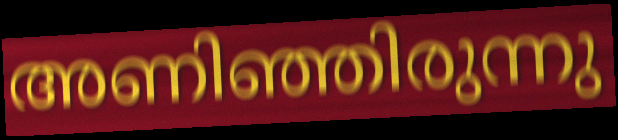
അണിഞ്ഞിരുന്നു